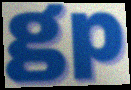
gp